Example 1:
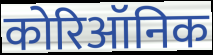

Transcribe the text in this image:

कोरिऑनिक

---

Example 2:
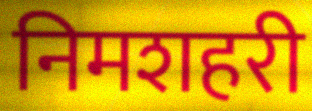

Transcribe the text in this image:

निमशहरी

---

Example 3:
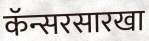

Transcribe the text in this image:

कॅन्सरसारखा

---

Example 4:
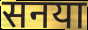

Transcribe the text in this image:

सनया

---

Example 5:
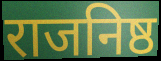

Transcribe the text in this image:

राजनिष्ठ